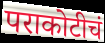
पराकोटीचं